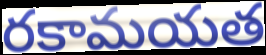
రకామయత